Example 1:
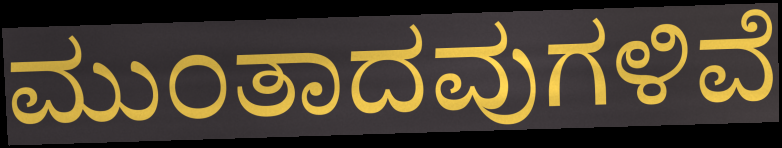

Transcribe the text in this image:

ಮುಂತಾದವುಗಳಿವೆ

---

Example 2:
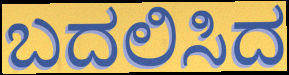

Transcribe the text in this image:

ಬದಲಿಸಿದ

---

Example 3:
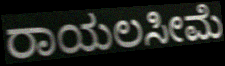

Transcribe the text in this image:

ರಾಯಲಸೀಮೆ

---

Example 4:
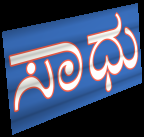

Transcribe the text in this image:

ಸಾಧು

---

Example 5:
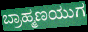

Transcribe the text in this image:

ಬ್ರಾಹ್ಮಣಯುಗ